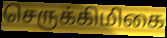
செருக்கிமிகை